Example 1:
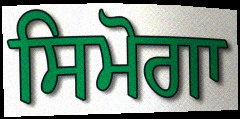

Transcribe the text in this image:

ਸਿਮੋਗਾ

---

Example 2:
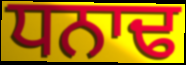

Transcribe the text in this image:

ਧਨਾਢ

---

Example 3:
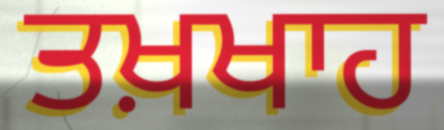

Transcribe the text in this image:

ਤਖ਼ਖਾਹ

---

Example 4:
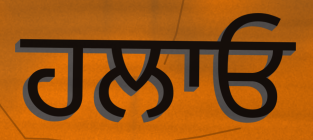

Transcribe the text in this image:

ਹਲਾਓ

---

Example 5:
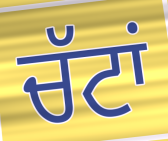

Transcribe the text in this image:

ਚੱਟਾਂ